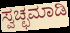
ಸ್ವಚ್ಛಮಾಡಿ